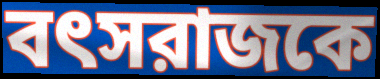
বৎসরাজকে